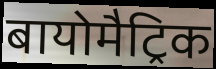
बायोमैट्रिक